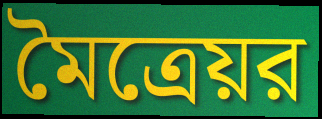
মৈত্রেয়র